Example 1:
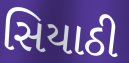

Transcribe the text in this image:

સિયાઠી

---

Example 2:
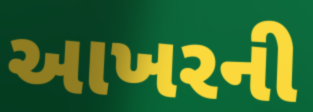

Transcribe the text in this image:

આખરની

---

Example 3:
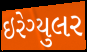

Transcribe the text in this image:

ઇરેગ્યુલર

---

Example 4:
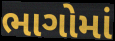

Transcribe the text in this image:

ભાગોમાં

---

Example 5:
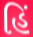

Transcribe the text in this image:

હિં